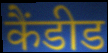
कैंडीड